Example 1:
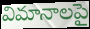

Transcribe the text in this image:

విమానాలపై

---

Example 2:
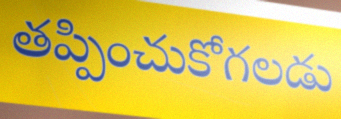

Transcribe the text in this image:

తప్పించుకోగలడు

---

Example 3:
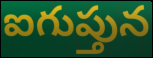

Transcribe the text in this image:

ఐగుప్తున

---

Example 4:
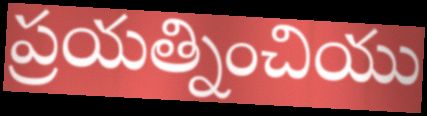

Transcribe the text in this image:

ప్రయత్నించియు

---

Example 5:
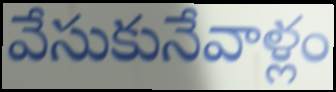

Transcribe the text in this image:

వేసుకునేవాళ్లం